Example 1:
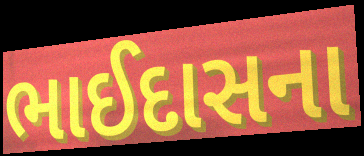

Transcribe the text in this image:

ભાઈદાસના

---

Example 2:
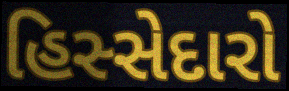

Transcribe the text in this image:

હિસ્સેદારો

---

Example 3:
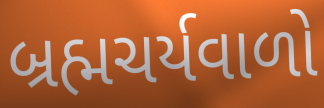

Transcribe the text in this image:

બ્રહ્મચર્યવાળો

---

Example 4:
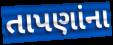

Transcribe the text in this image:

તાપણાંના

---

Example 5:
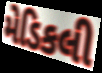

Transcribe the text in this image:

મેડિકલી